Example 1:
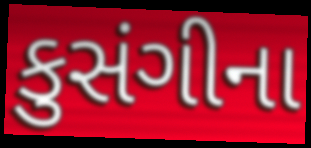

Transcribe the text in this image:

કુસંગીના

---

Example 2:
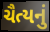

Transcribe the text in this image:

ચૈત્યનું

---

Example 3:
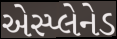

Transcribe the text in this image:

એસ્પ્લેનેડ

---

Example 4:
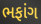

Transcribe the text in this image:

ભફાંગ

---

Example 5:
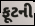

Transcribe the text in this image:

ફૂટની